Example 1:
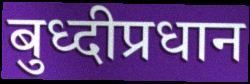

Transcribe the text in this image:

बुध्दीप्रधान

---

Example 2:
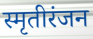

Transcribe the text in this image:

स्मृतीरंजन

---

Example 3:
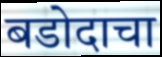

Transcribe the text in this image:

बडोदाचा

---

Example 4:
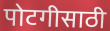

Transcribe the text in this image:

पोटगीसाठी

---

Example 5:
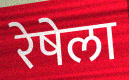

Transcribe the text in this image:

रेषेला